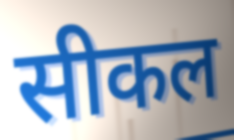
सीकल